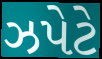
ઝપેટે